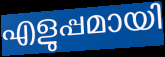
എളുപ്പമായി